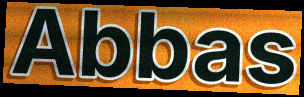
Abbas